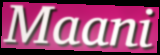
Maani